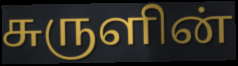
சுருளின்